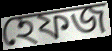
হেফজ